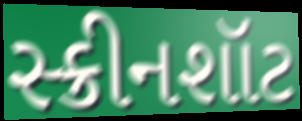
સ્ક્રીનશૉટ